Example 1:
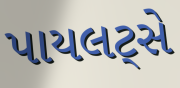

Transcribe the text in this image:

પાયલટ્સે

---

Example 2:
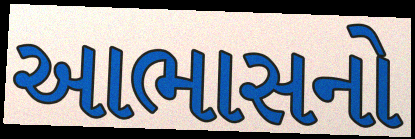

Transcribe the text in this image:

આભાસનો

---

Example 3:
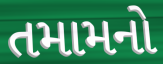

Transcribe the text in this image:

તમામનો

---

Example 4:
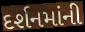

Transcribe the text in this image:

દર્શનમાંની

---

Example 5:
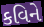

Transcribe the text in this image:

કવિને